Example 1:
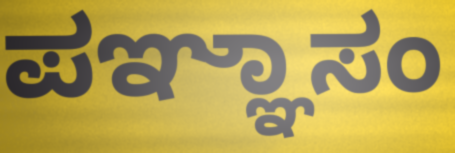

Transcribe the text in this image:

ಪಞ್ಞಾಸಂ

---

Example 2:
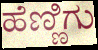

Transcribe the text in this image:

ಹೆಣ್ಣಿಗು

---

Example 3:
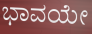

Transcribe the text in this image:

ಭಾವಯೇ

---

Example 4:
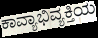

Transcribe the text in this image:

ಕಾವ್ಯಾಭಿವ್ಯಕ್ತಿಯ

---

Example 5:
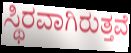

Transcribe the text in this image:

ಸ್ಥಿರವಾಗಿರುತ್ತವೆ